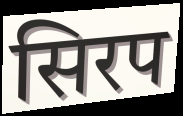
सिरप